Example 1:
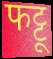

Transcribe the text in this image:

फट्टू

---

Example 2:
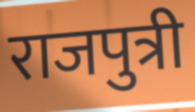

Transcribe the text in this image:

राजपुत्री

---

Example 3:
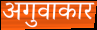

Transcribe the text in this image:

अगुवाकार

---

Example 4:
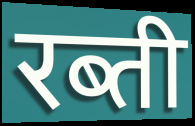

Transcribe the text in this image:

रब्ती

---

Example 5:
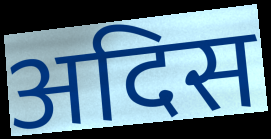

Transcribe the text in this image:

अदिस